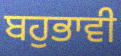
ਬਹੁਭਾਵੀ